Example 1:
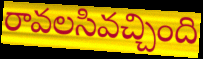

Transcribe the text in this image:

రావలసివచ్చింది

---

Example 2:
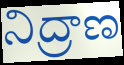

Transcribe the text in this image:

నిద్రాణ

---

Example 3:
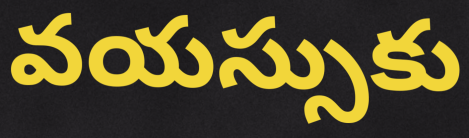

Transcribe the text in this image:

వయస్సుకు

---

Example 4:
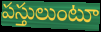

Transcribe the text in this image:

పస్తులుంటూ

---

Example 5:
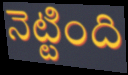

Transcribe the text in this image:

నెట్టింది